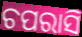
ଚପରାସି